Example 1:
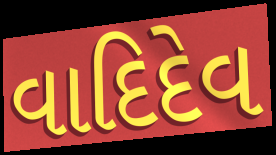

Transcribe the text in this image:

વાદિદેવ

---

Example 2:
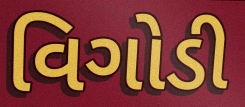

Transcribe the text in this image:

વિગોડી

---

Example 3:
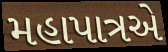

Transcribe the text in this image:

મહાપાત્રએ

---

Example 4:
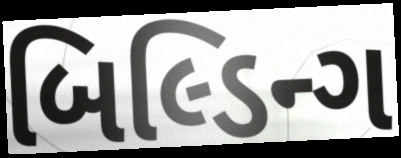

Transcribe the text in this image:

બિલ્ડિન્ગ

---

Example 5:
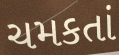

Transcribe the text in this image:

ચમકતાં